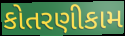
કોતરણીકામ